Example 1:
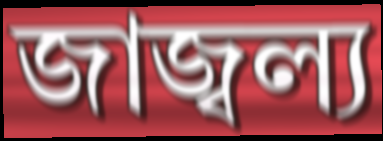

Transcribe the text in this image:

জাজ্বল্য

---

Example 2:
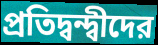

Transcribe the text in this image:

প্রতিদ্বন্দ্বীদের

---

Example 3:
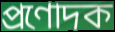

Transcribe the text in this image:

প্রণোদক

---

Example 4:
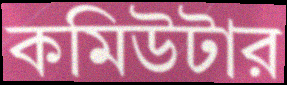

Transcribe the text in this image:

কমিউটার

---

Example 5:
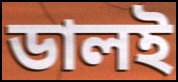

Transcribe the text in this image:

ডালই